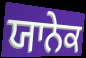
ਯਾਨੇਕ